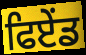
ਫਿਏਂਡ